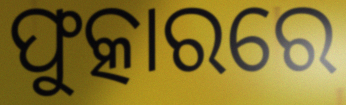
ଫୁତ୍କାରରେ